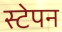
स्टेपन